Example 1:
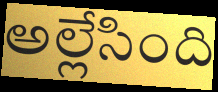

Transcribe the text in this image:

అల్లేసింది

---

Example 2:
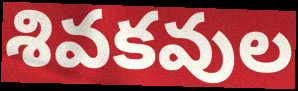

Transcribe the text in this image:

శివకవుల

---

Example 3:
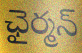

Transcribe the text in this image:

ఛైర్మన్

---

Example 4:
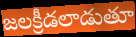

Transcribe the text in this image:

జలక్రీడలాడుతూ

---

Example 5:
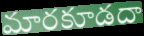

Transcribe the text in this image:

మారకూడదా